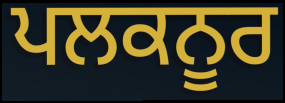
ਪਲਕਨੂਰ